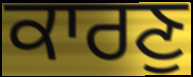
ਕਾਰਣੁ